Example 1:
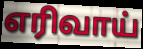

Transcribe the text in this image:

எரிவாய்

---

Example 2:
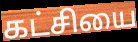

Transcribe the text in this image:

கட்சியை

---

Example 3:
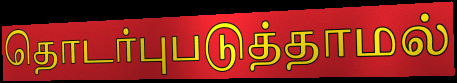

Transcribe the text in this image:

தொடர்புபடுத்தாமல்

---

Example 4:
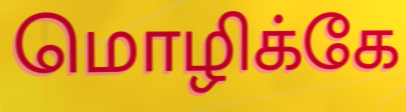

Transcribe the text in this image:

மொழிக்கே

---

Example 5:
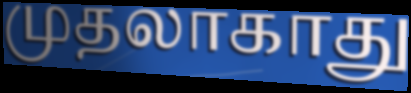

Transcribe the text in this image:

முதலாகாது